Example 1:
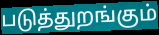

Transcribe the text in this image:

படுத்துறங்கும்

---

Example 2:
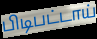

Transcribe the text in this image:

பிடிபட்டாய்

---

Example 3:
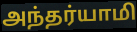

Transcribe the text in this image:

அந்தர்யாமி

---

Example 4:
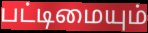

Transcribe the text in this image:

பட்டிமையும்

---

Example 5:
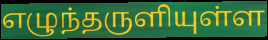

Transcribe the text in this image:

எழுந்தருளியுள்ள